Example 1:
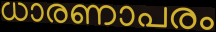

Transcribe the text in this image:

ധാരണാപരം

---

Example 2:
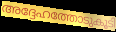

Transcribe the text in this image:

അദ്ദേഹത്തോടുകൂടി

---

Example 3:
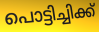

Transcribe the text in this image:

പൊട്ടിച്ചിക്ക്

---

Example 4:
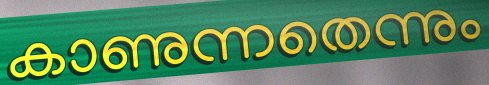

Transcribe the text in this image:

കാണുന്നതെന്നും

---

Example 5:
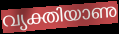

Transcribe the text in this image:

വ്യക്തിയാണു